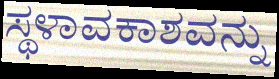
ಸ್ಥಳಾವಕಾಶವನ್ನು